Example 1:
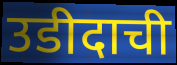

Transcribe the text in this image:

उडीदाची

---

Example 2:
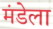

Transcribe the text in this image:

मंडेला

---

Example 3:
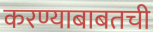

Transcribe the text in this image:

करण्याबाबतची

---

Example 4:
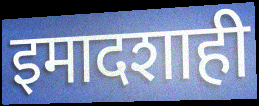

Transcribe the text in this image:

इमादशाही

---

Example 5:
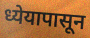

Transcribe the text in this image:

ध्येयापासून